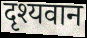
दृश्यवान